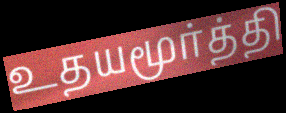
உதயமூர்த்தி